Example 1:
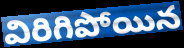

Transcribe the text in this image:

విరిగిపోయిన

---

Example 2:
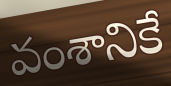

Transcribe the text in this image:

వంశానికే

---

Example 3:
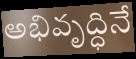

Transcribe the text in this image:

అభివృద్ధినే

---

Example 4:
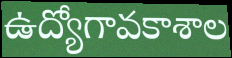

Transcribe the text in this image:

ఉద్యోగావకాశాల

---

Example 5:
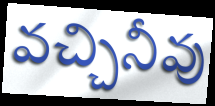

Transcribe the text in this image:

వచ్చినీవు